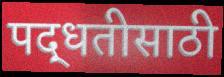
पद्धतीसाठी